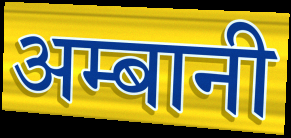
अम्‍बानी